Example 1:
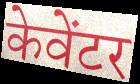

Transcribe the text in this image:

केवेंटर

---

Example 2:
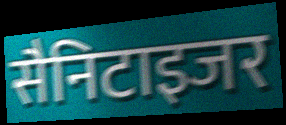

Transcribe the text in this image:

सैनिटाइजर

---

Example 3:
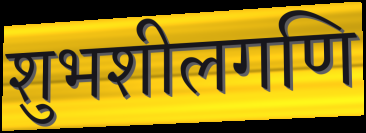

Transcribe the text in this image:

शुभशीलगणि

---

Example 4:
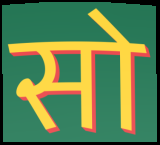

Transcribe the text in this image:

सो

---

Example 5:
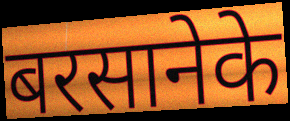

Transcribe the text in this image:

बरसानेके